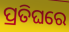
ପ୍ରତିଘରେ